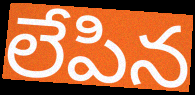
లేపిన